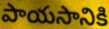
పాయసానికి